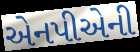
એનપીએની